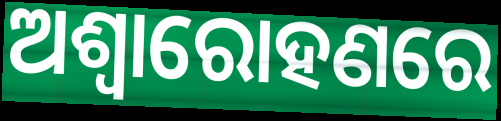
ଅଶ୍ଵାରୋହଣରେ